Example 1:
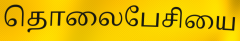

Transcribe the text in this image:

தொலைபேசியை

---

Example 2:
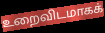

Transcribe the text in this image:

உறைவிடமாகக்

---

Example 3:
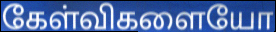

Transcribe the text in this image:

கேள்விகளையோ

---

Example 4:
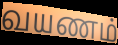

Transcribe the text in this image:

வயணம்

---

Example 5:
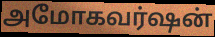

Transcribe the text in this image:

அமோகவர்ஷன்